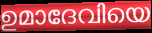
ഉമാദേവിയെ